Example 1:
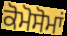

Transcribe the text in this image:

ਕੋਮੋਸੋਮਾਂ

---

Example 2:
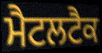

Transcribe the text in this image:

ਮੈਟਲਟੈਕ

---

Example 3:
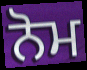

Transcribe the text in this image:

ਨੋਮ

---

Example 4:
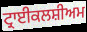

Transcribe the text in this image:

ਟ੍ਰਾਈਕਲਸ਼ੀਅਮ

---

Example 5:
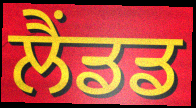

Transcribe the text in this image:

ਲੈਂਡਡ